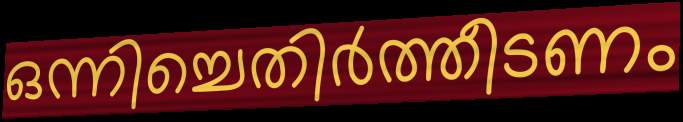
ഒന്നിച്ചെതിർത്തീടണം